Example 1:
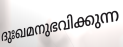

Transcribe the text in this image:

ദുഃഖമനുഭവിക്കുന്ന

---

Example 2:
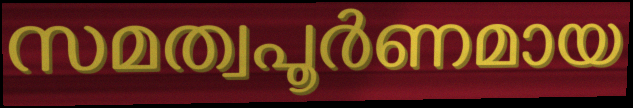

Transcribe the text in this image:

സമത്വപൂർണമായ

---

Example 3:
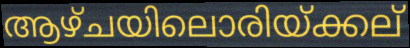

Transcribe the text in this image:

ആഴ്ചയിലൊരിയ്ക്കല്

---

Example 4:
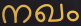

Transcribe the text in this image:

നഖം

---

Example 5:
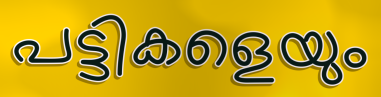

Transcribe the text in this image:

പട്ടികളെയും